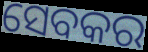
ସେବକର